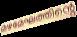
മഴമേഘത്തിന്റെ